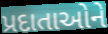
પ્રદાતાઓને